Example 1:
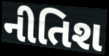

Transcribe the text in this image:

નીતિશ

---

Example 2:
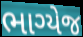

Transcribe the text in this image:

ભાગ્યેજ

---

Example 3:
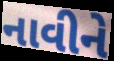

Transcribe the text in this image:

નાવીને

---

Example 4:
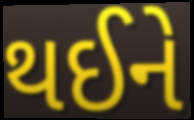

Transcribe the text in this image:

થઈને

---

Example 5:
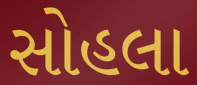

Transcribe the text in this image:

સોહલા